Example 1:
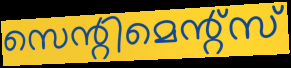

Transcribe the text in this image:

സെന്റിമെന്റ്സ്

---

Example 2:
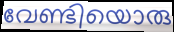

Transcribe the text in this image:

വേണ്ടിയൊരു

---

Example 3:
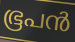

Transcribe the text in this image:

ഭൂപൻ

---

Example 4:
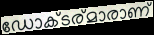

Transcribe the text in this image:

ഡോക്ടര്മാരാണ്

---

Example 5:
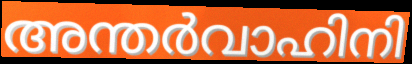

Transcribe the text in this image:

അന്തർവാഹിനി